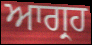
ਆਗ੍ਰਹ